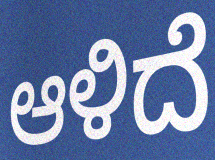
ಆಳಿದೆ